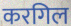
करगिल